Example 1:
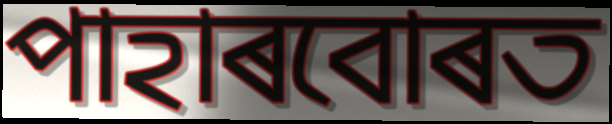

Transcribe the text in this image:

পাহাৰবোৰত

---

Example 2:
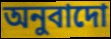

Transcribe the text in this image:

অনুবাদো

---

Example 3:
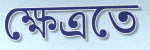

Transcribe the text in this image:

ক্ষেত্ৰতে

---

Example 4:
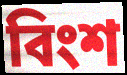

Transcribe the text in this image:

বিংশ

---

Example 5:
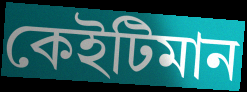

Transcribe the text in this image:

কেইটিমান